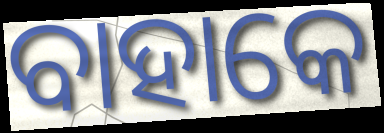
ବାହାକେ